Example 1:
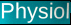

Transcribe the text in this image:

Physiol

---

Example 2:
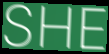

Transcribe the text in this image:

SHE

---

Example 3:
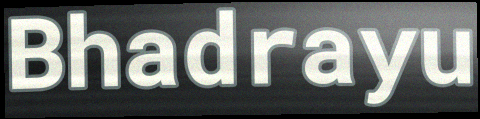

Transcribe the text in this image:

Bhadrayu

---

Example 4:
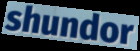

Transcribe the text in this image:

shundor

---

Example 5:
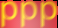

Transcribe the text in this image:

ppp